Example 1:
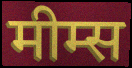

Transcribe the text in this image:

मीम्‍स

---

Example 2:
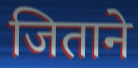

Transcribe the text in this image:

जिताने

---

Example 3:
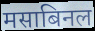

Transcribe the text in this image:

मसाबिनल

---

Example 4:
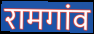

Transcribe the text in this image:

रामगांव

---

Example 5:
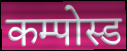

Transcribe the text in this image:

कम्पोस्ड